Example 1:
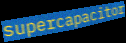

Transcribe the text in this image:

supercapacitor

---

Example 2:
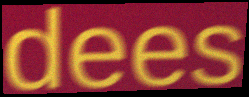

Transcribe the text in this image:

dees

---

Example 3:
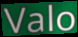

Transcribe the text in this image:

Valo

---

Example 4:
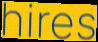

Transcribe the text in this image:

hires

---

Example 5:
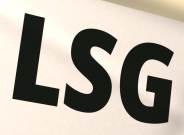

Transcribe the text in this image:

LSG